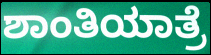
ಶಾಂತಿಯಾತ್ರೆ